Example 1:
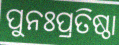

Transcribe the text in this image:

ପୁନଃପ୍ରତିଷ୍ଠା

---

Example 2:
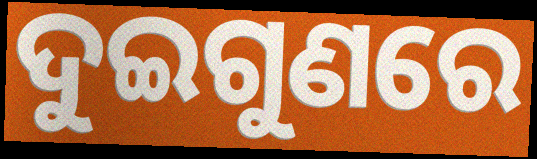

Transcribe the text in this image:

ଦୁଇଗୁଣରେ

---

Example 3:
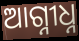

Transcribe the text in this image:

ଆଗ୍ନୀଧ୍ନ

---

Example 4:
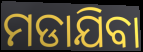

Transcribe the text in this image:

ମଡାଯିବା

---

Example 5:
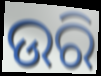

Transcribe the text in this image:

ଉରି